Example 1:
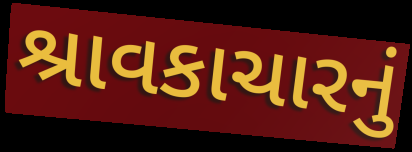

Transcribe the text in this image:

શ્રાવકાચારનું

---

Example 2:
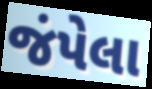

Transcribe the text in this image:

જંપેલા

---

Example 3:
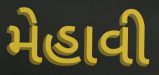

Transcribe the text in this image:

મેહાવી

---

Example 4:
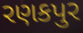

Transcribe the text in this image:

રણકપુર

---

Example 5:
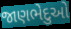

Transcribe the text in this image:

જાણભેદુઓ